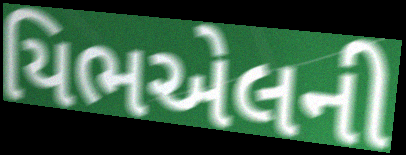
યિભએલની